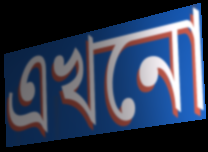
এখনো